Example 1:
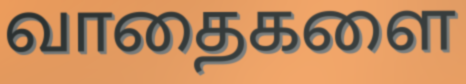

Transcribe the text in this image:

வாதைகளை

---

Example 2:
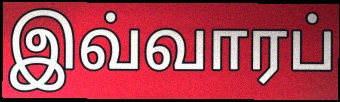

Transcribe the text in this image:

இவ்வாரப்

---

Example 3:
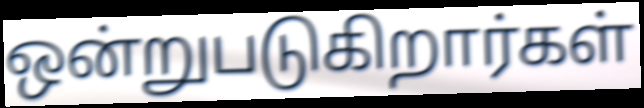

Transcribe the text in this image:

ஒன்றுபடுகிறார்கள்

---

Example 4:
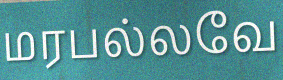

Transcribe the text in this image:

மரபல்லவே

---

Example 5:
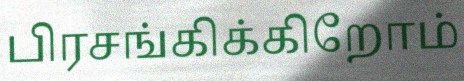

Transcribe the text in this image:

பிரசங்கிக்கிறோம்